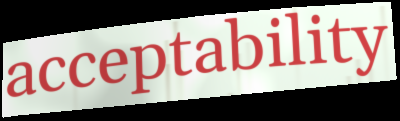
acceptability